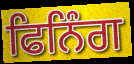
ਫਿਨਿੰਗ